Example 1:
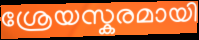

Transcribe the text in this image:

ശ്രേയസ്കരമായി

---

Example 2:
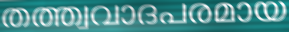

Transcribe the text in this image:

തത്ത്വവാദപരമായ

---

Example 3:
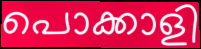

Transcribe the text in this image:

പൊക്കാളി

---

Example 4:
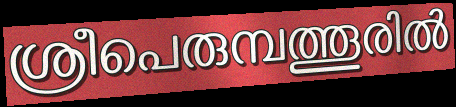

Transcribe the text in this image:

ശ്രീപെരുമ്പത്തൂരിൽ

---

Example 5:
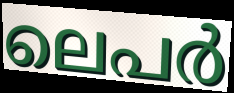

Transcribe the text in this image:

ലെപർ